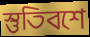
স্তুতিবশে